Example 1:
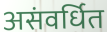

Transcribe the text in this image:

असंवर्धित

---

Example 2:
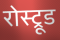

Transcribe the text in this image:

रोस्ट्रूड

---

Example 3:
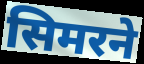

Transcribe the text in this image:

सिमरने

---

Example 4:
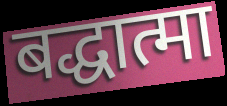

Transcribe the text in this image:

बद्धात्मा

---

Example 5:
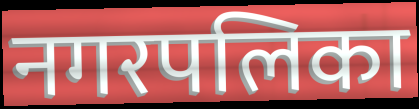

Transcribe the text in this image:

नगरपलिका